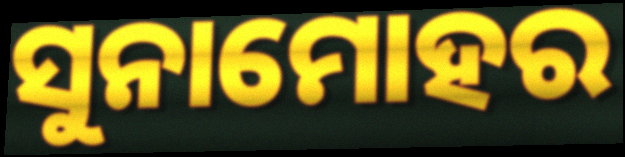
ସୁନାମୋହର